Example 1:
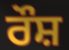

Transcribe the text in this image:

ਰੌਸ਼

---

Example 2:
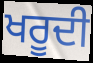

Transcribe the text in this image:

ਖਰੂਦੀ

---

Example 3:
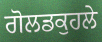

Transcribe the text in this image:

ਗੋਲਡਕੁਹਲੇ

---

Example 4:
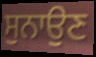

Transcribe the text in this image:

ਸੁਨਾਉਣ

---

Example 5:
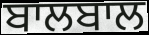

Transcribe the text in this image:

ਬਾਲਬਾਲ